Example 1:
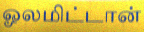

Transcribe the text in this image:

ஓலமிட்டான்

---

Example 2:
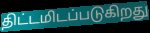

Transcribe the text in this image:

திட்டமிடப்படுகிறது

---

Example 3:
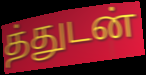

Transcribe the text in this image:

த்துடன்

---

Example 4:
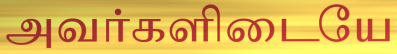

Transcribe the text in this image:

அவர்களிடையே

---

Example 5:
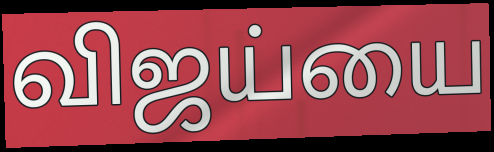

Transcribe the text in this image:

விஜய்யை